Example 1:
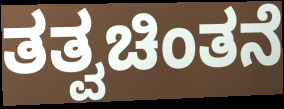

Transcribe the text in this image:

ತತ್ವಚಿಂತನೆ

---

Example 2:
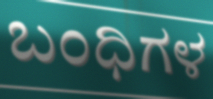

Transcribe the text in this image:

ಬಂಧಿಗಳ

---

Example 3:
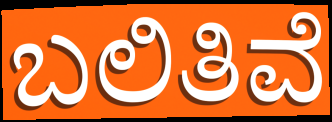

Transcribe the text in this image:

ಬಲಿತಿವೆ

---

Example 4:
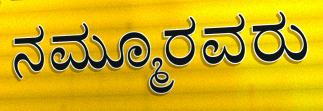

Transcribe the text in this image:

ನಮ್ಮೂರವರು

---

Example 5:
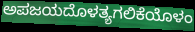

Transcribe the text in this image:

ಅಪಜಯದೊಳತ್ಯಗಲಿಕೆಯೊಳಂ